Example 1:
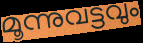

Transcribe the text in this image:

മൂന്നുവട്ടവും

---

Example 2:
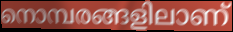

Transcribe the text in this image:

നൊമ്പരങ്ങളിലാണ്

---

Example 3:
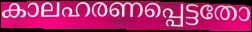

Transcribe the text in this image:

കാലഹരണപ്പെട്ടതോ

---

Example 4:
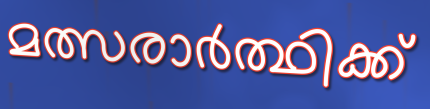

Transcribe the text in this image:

മത്സരാർത്ഥിക്ക്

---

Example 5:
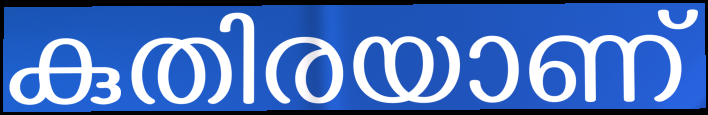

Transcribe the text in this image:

കുതിരയാണ്